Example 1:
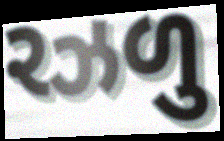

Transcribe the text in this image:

રઝળુ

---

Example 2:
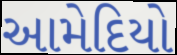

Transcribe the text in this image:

આમેદિયો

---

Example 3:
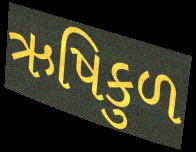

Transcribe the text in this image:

ઋષિકુળ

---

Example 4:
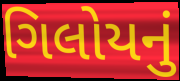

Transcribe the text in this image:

ગિલોયનું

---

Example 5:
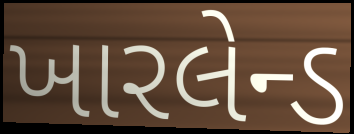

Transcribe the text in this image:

ખારલેન્ડ